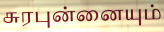
சுரபுன்னையும்